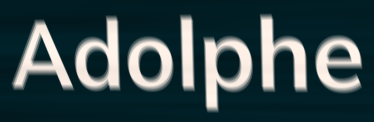
Adolphe